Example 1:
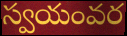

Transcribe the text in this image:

స్వయంవర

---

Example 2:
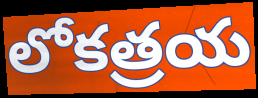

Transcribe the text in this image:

లోకత్రయ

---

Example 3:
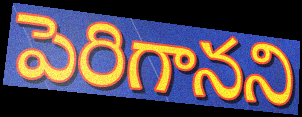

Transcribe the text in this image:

పెరిగానని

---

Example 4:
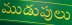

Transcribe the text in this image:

ముడుపులు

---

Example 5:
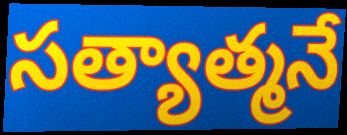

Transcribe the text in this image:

సత్యాత్మనే